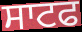
ਸਾਟਫ